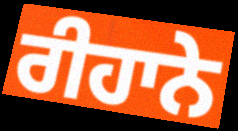
ਰੀਹਾਨੇ